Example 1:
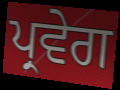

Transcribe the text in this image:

ਪ੍ਰਵੇਗ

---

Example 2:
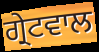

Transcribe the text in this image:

ਗ੍ਰੇਟਵਾਲ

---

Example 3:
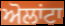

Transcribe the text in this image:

ਅੋਲਾਂਟਾ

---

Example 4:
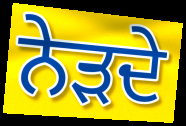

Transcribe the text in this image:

ਨੇੜਦੇ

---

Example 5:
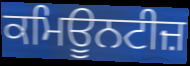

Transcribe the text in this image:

ਕਮਿਊਨਟੀਜ਼